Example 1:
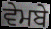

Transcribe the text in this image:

ਵੇਮਬੇ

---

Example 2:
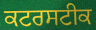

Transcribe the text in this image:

ਕਟਰਸਟੀਕ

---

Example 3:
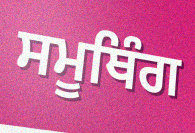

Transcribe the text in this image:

ਸਮੂਥਿੰਗ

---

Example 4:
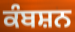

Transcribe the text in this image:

ਕੰਬਸ਼ਨ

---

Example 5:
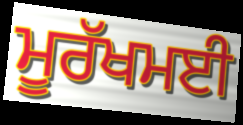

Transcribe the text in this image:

ਮੂਰੱਖਮਈ